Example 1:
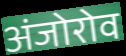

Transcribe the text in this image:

अंजोरोव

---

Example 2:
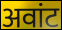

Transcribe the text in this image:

अवांट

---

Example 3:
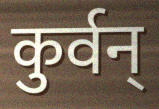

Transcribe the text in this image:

कुर्वन्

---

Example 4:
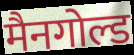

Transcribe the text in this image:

मैनगोल्ड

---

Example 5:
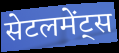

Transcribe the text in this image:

सेटलमेंट्स